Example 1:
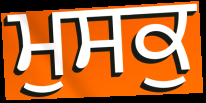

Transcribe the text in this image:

ਮੁਸਕੁ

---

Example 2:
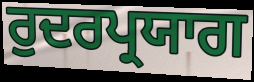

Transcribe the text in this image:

ਰੁਦਰਪ੍ਰਯਾਗ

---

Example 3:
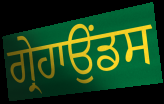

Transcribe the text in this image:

ਗ੍ਰੇਹਾਉਂਡਸ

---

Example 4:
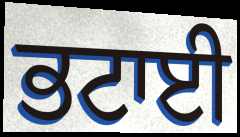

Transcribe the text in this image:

ਭਟਾਈ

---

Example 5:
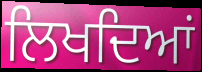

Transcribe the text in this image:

ਲਿਖਦਿਆਂ